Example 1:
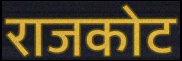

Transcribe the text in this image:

राजकोट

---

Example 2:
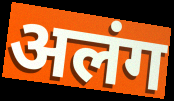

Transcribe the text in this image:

अलंग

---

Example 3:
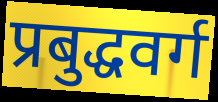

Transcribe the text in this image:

प्रबुद्धवर्ग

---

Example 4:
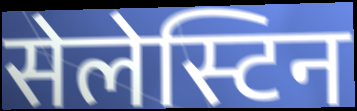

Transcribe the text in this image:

सेलेस्टिन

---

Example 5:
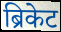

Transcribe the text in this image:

ब्रिकेट